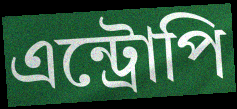
এন্ট্রোপি